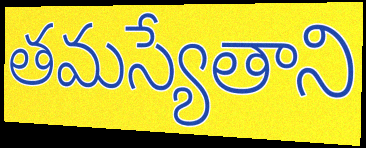
తమస్యేతాని